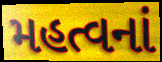
મહત્વનાં